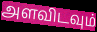
அளவிடவும்